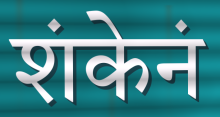
शंकेनं